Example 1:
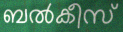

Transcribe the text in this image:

ബൽകീസ്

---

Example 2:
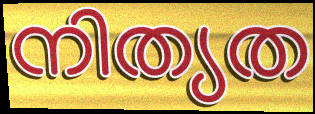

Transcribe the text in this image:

നിത്യത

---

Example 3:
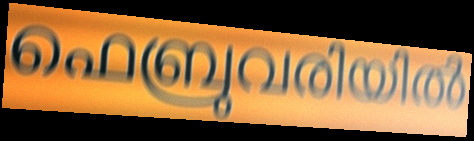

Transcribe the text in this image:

ഫെബ്രുവരിയിൽ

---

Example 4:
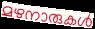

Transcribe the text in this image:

മഴനാരുകൾ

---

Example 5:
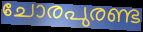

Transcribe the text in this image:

ചോരപുരണ്ട